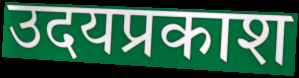
उदयप्रकाश